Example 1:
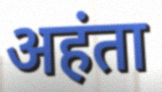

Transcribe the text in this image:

अहंता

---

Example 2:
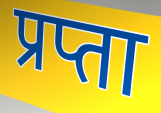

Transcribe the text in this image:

प्रप्ता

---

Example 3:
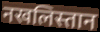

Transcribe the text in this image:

नखलिस्तान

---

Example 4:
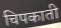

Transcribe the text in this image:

चिपकाती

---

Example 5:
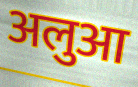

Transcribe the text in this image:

अलुआ